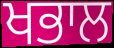
ਖਭਾਲ